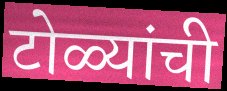
टोळ्यांची